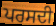
ਪਰਸਦੀ